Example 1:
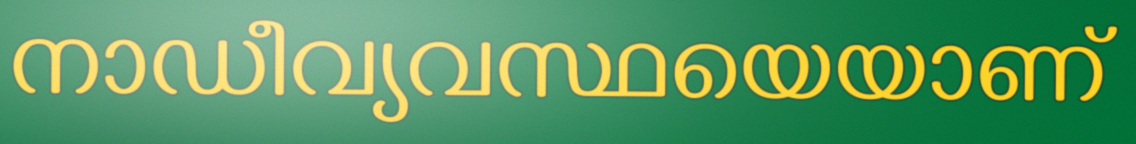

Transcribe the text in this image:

നാഡീവ്യവസ്ഥയെയാണ്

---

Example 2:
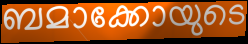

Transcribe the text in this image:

ബമാക്കോയുടെ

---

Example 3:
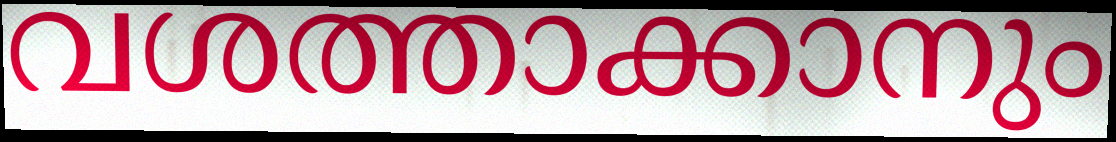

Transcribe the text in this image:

വശത്താക്കാനും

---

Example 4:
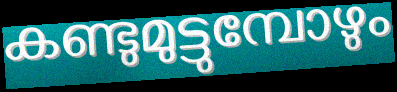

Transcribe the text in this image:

കണ്ടുമുട്ടുമ്പോഴും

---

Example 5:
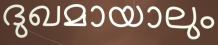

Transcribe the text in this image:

ദുഖമായാലും